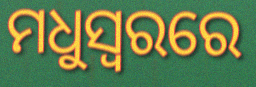
ମଧୁସ୍ୱରରେ